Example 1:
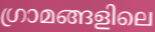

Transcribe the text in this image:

ഗ്രാമങ്ങളിലെ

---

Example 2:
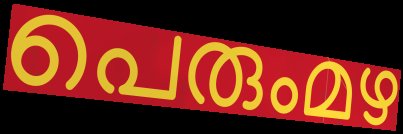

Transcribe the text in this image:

പെരുംമഴ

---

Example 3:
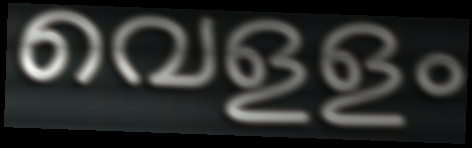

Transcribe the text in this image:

വെളളം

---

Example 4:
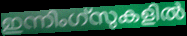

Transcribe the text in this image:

ഇന്നിംഗ്സുകളിൽ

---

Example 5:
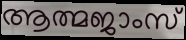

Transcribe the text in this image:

ആത്മജാംസ്